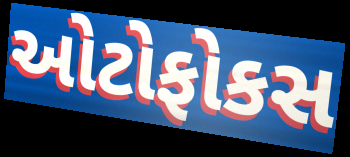
ઓટોફોકસ